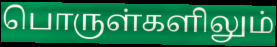
பொருள்களிலும்